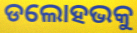
ଡଲୋହଭକୁ